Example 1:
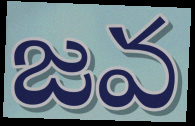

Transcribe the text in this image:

జవ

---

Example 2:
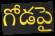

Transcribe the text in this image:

గోడపై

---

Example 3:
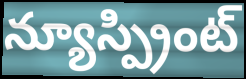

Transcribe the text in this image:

న్యూస్ప్రింట్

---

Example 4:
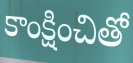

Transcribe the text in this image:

కాంక్షించితో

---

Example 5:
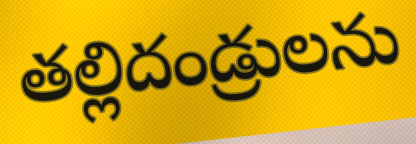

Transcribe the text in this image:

తల్లిదండ్రులను